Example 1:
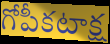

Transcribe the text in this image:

గోపీకటాక్ష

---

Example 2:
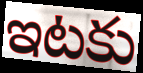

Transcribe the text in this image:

ఇటకు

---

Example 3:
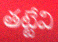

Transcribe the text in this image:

తట్టేవి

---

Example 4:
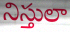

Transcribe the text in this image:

నిస్తులా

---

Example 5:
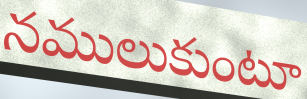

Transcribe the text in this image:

నములుకుంటూ